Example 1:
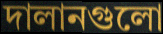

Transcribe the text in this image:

দালানগুলো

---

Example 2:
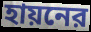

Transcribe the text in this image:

হায়নের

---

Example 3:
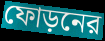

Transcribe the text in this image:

ফোড়নের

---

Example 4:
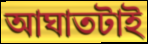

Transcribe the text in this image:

আঘাতটাই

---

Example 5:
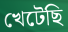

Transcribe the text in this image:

খেটেছি